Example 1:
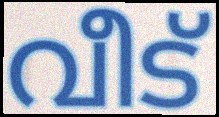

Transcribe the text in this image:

വീട്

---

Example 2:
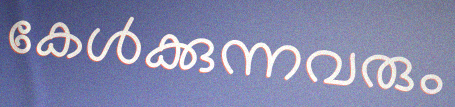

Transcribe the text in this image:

കേൾക്കുന്നവരും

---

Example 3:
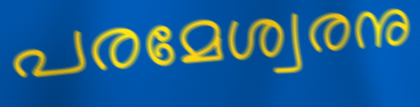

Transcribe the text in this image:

പരമേശ്വരനു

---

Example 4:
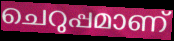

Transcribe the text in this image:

ചെറുപ്പമാണ്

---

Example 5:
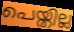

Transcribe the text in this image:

പെയ്തില്ല